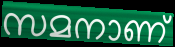
സമനാണ്